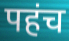
पहंच